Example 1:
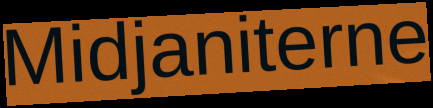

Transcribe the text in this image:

Midjaniterne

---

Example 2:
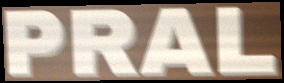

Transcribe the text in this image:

PRAL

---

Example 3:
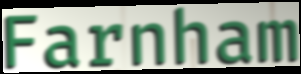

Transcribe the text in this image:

Farnham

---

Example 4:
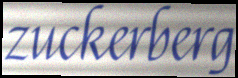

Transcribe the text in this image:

zuckerberg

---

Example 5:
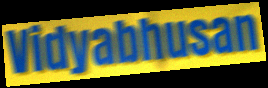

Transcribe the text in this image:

Vidyabhusan